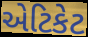
એટિકેટ